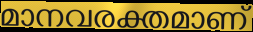
മാനവരക്തമാണ്